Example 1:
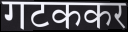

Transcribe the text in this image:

गटककर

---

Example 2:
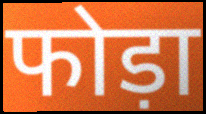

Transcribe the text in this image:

फोड़ा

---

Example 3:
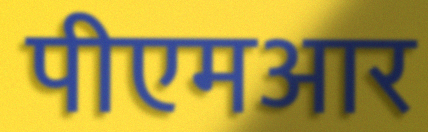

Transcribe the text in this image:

पीएमआर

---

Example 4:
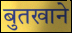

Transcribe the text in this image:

बुतखाने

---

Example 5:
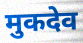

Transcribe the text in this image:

मुकदेव